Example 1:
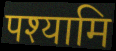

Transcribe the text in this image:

पश्यामि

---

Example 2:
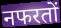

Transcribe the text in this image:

नफरतों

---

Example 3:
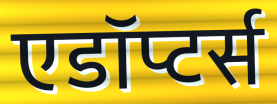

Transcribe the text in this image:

एडॉप्टर्स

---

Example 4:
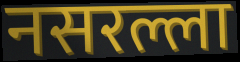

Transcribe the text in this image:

नसरल्ला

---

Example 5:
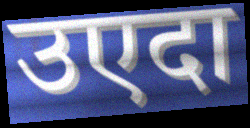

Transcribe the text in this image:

उएदा